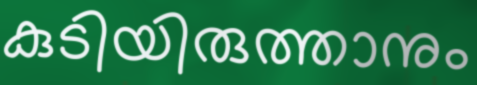
കുടിയിരുത്താനും